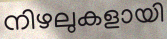
നിഴലുകളായി